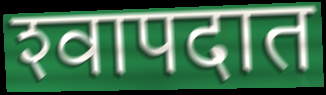
श्वापदात